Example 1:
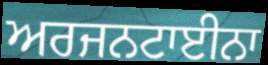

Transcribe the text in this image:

ਅਰਜਨਟਾਈਨਾ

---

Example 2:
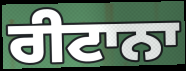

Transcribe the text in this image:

ਰੀਟਾਨਾ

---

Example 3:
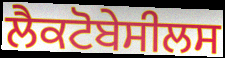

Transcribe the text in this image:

ਲੈਕਟੋਬੇਸੀਲਸ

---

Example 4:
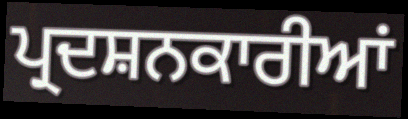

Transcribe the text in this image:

ਪ੍ਰਦਸ਼ਨਕਾਰੀਆਂ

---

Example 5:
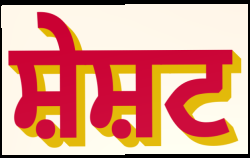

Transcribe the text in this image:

ਸ਼ੇਸ਼ਟ